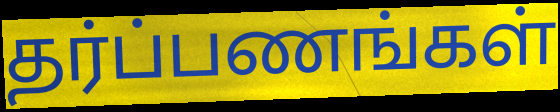
தர்ப்பணங்கள்